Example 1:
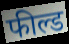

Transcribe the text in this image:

फील्ड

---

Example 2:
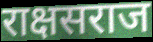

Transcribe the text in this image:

राक्षसराज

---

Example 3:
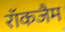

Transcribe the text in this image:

रॉकजैम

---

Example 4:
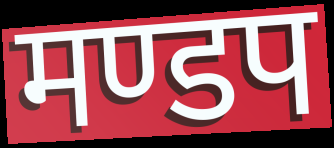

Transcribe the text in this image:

मण्‍डप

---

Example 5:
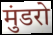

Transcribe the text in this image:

मुंडरो